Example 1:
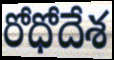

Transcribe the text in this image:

రోధోదేశ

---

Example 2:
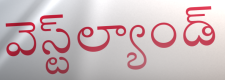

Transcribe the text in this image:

వెస్ట్‌ల్యాండ్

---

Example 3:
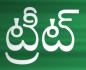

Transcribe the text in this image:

ట్రీట్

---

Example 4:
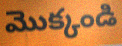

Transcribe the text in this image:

మొక్కండి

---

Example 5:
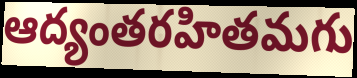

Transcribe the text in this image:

ఆద్యంతరహితమగు